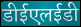
डीईएलईडी